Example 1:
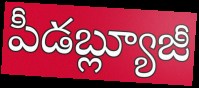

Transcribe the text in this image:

పీడబ్ల్యూజీ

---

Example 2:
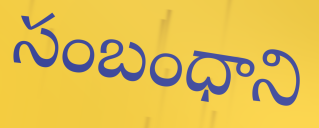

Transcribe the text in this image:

సంబంధాని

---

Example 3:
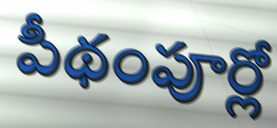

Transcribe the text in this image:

పీథంపూర్లో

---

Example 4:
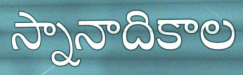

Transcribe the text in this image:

స్నానాదికాల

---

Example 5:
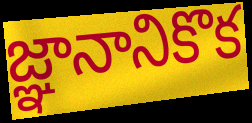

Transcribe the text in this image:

జ్ఞానానికొక